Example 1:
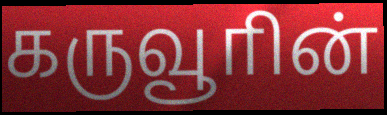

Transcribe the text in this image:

கருவூரின்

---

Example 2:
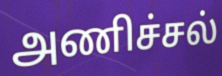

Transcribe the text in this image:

அணிச்சல்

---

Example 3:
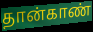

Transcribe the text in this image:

தான்காண்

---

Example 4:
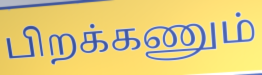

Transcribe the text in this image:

பிறக்கணும்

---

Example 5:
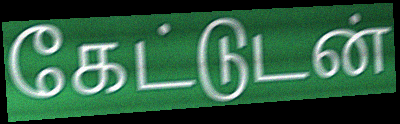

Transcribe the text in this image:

கேட்டுடன்